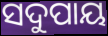
ସଦୁପାୟ